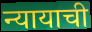
न्यायाची